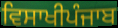
ਵਿਸਾਖੀਪੰਜਾਬ